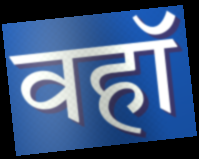
वहॉ